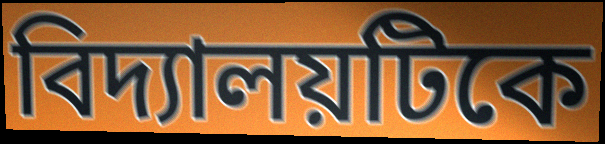
বিদ্যালয়টিকে